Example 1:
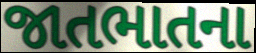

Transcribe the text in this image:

જાતભાતના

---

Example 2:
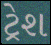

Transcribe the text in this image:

ટ્રેશ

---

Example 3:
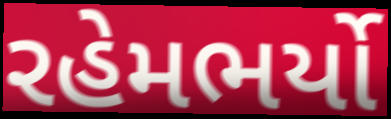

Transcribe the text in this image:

રહેમભર્યો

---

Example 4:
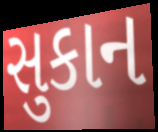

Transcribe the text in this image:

સુકાન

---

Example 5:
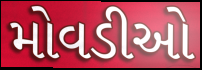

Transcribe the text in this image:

મોવડીઓ